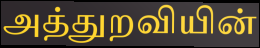
அத்துறவியின்